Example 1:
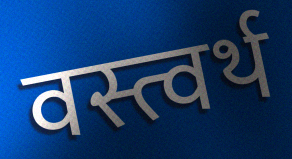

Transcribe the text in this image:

वस्त्वर्थ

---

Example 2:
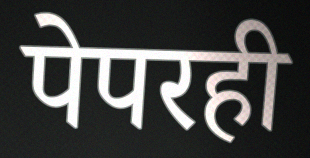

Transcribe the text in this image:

पेपरही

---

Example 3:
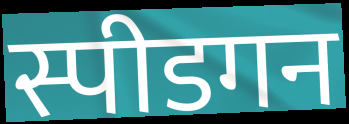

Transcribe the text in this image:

स्पीडगन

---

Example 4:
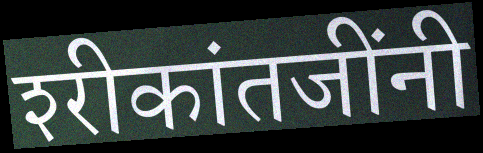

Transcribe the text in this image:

श्रीकांतजींनी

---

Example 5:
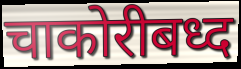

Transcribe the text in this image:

चाकोरीबध्द